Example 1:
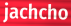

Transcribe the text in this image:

jachcho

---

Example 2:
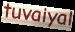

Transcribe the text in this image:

tuvaiyal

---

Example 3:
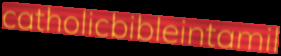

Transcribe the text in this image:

catholicbibleintamil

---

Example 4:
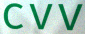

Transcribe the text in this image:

cvv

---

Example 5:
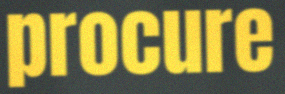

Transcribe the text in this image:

procure